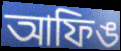
আফিঙ